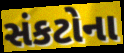
સંકટોના